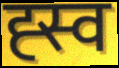
ह्स्व